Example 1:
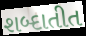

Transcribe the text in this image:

શબ્દાતીત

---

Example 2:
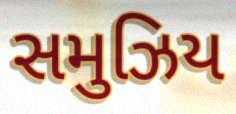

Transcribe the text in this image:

સમુઝિય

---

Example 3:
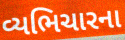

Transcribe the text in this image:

વ્યભિચારના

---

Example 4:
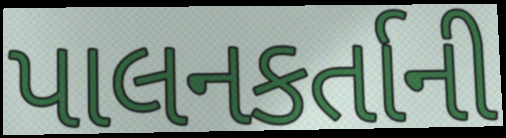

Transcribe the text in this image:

પાલનકર્તાની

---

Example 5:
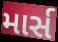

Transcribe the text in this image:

માર્સ